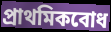
প্রাথমিকবোধ